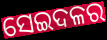
ସେଇଦଳର